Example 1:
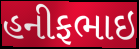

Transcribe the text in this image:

હનીફભાઇ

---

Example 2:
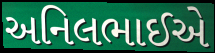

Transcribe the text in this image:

અનિલભાઈએ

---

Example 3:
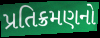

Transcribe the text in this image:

પ્રતિક્રમણનો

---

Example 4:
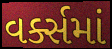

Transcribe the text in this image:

વર્ક્સમાં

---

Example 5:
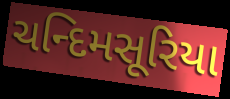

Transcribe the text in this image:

ચન્દિમસૂરિયા